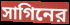
সাগিনের